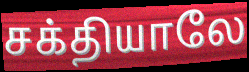
சக்தியாலே